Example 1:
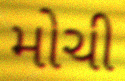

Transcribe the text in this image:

મોચી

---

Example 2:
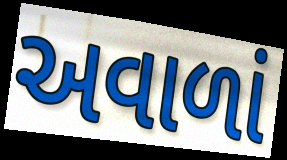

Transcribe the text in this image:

અવાળાં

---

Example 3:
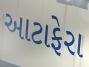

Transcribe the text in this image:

આટાફેરા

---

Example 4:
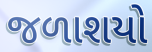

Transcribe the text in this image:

જળાશયો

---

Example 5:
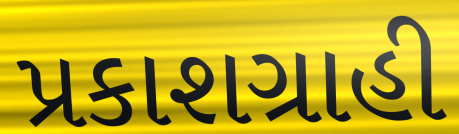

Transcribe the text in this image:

પ્રકાશગ્રાહી